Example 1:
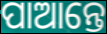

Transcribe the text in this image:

ପାଆନ୍ତେ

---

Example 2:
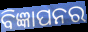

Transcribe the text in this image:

ବିଜ୍ଞାପନର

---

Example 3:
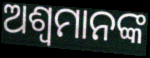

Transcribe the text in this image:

ଅଶ୍ୱମାନଙ୍କ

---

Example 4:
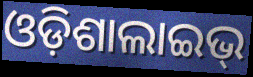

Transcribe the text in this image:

ଓଡ଼ିଶାଲାଇଭ୍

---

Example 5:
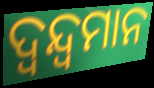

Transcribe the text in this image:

ଦ୍ଵନ୍ଦ୍ଵମାନ